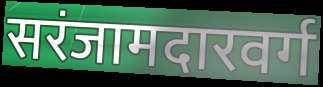
सरंजामदारवर्ग